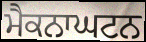
ਮੈਕਨਾਘਟਨ